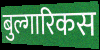
बुल्गारिकस